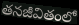
తనజీవితంలో